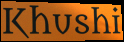
Khushi